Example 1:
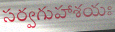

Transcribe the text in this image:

సర్వగుహాశయః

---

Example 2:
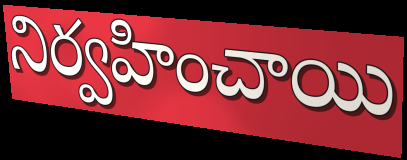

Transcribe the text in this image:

నిర్వహించాయి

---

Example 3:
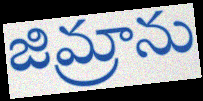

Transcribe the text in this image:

జిమ్రాను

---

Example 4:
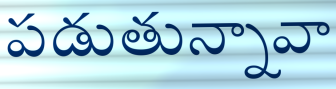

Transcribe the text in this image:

పడుతున్నావా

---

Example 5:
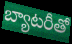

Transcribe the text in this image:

బ్యాటరీతో